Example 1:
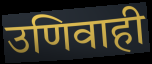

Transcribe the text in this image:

उणिवाही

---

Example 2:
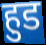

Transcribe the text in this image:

हुड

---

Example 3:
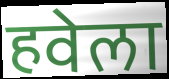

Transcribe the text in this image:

हवेला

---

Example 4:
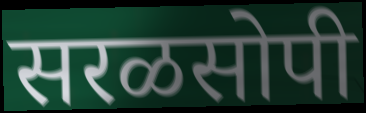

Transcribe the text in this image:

सरळसोपी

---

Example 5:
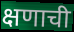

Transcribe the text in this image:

क्षणाची